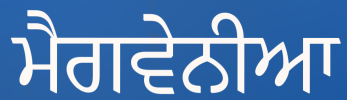
ਮੈਗਵੇਨੀਆ